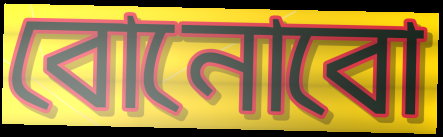
বোনোবো